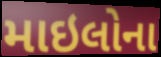
માઇલોના